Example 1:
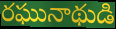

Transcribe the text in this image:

రఘునాథుడి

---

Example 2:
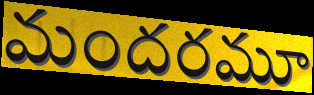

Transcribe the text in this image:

మందరమూ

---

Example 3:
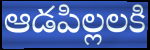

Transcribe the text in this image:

ఆడపిల్లలకి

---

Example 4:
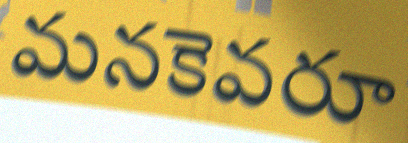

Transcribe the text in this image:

మనకెవరూ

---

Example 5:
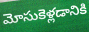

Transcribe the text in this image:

మోసుకెళ్లడానికి